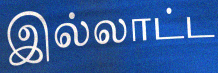
இல்லாட்ட